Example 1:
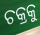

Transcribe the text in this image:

ଚକ୍ରକୁ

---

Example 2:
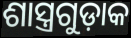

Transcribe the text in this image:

ଶାସ୍ତ୍ରଗୁଡ଼ାକ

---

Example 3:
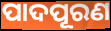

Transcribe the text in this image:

ପାଦପୂରଣ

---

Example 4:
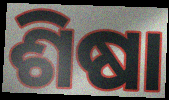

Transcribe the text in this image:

ଶିଷା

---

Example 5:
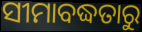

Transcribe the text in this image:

ସୀମାବଦ୍ଧତାରୁ